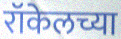
रॉकेलच्या